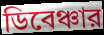
ডিবেঞ্চার